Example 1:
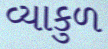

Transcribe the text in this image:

વ્યાકુળ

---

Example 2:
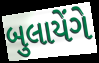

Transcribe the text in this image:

બુલાયેંગે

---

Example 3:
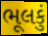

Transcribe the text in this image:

ભૂલકું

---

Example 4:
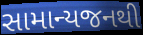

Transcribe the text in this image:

સામાન્યજનથી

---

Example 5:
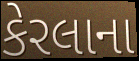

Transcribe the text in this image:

કેરલાના